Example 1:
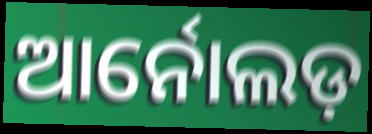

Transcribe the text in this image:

ଆର୍ନୋଲଡ଼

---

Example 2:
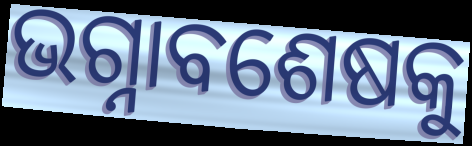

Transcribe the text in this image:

ଭଗ୍ନାବଶେଷକୁ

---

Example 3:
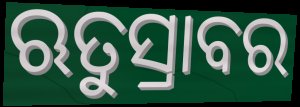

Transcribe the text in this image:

ଋତୁସ୍ରାବର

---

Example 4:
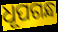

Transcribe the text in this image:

ଧୂପଗନ୍ଧ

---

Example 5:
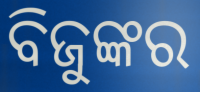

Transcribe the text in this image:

ବିଜୁଙ୍କର